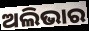
ଅଲିଭାର